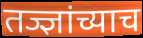
तज्ज्ञांच्याच